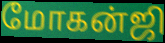
மோகன்ஜி